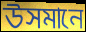
উসমানে